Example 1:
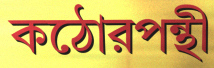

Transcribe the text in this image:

কঠোরপন্থী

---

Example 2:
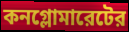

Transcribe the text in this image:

কনগ্লোমারেটের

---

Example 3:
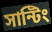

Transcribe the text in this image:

সান্টিং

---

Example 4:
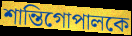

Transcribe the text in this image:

শান্তিগোপালকে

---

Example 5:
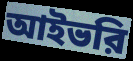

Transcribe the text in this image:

আইভরি